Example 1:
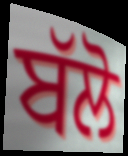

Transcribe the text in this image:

ਬੱਲੋ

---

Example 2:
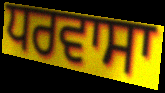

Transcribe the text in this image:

ਧਰਵਾਸਾ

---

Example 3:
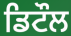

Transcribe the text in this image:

ਡਿਟੌਲ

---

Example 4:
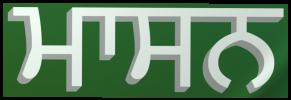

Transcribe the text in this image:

ਮਾਸਨ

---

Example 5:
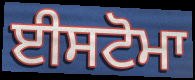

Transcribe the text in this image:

ਈਸਟੋਮਾ